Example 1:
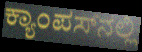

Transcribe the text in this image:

ಕ್ಯಾಂಪಸ್‌ನಲ್ಲಿ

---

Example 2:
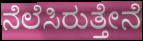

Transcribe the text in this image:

ನೆಲೆಸಿರುತ್ತೇನೆ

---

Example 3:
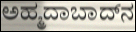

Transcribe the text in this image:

ಅಹ್ಮದಾಬಾದ್‌ನ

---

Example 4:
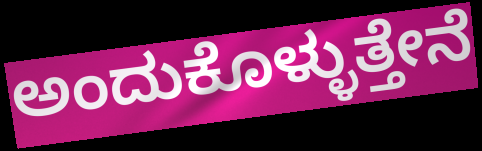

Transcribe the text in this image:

ಅಂದುಕೊಳ್ಳುತ್ತೇನೆ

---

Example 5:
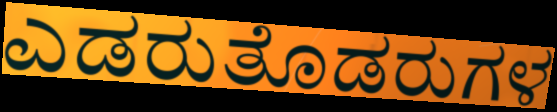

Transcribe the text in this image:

ಎಡರುತೊಡರುಗಳ